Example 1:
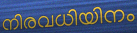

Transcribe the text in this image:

നിരവധിയിനം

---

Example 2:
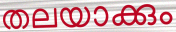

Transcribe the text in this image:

തലയാക്കും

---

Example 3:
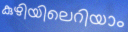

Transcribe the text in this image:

കുഴിയിലെറിയാം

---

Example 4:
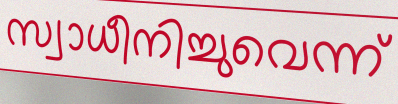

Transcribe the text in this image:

സ്വാധീനിച്ചുവെന്ന്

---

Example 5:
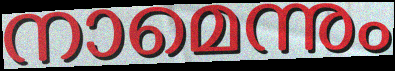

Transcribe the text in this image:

നാമെന്നും